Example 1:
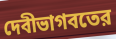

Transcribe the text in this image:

দেবীভাগবতের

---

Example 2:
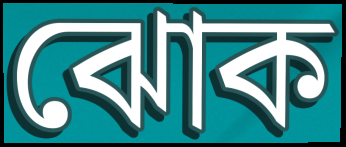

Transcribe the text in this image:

ঝোক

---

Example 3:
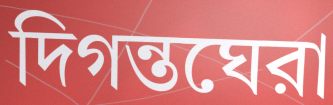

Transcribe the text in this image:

দিগন্তঘেরা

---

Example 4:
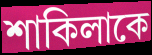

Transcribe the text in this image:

শাকিলাকে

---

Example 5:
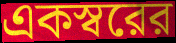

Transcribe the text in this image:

একস্বরের